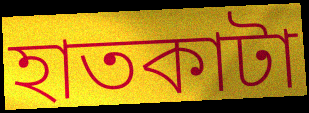
হাতকাটা